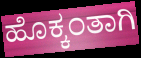
ಹೊಕ್ಕಂತಾಗಿ